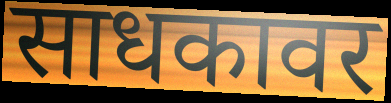
साधकावर